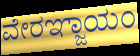
ವೇರಞ್ಜಾಯಂ